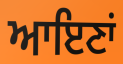
ਆਇਣਾਂ